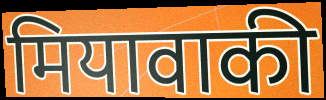
मियावाकी